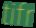
tifr